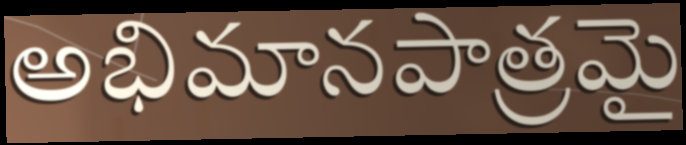
అభిమానపాత్రమై